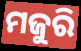
ମଜୁରି